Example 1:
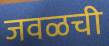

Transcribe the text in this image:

जवळची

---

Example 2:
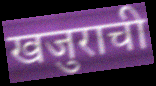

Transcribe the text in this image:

खजुराची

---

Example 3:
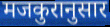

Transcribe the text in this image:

मजकुरानुसार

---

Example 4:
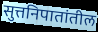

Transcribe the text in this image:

सुत्तनिपातांतील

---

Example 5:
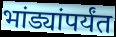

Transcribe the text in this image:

भांड्यांपर्यंत